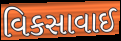
વિકસાવાઈ